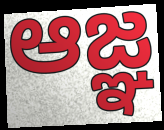
ఆజ్ఞ